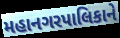
મહાનગરપાલિકાને